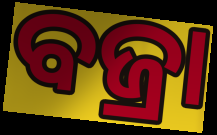
ବଜ୍ରା